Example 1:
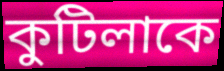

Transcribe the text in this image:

কুটিলাকে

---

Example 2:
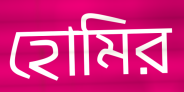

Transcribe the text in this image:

হোমির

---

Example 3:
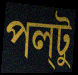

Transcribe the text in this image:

পল্‌টু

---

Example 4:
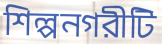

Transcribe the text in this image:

শিল্পনগরীটি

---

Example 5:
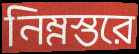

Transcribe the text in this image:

নিম্নস্তরে